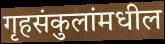
गृहसंकुलांमधील